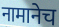
नामानेच